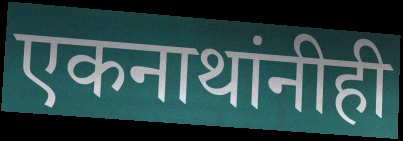
एकनाथांनीही